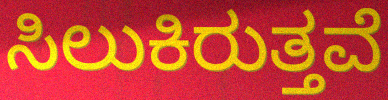
ಸಿಲುಕಿರುತ್ತವೆ